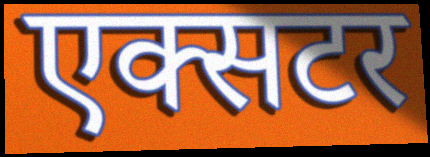
एक्सटर